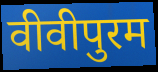
वीवीपुरम